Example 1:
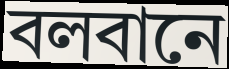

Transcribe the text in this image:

বলবানে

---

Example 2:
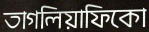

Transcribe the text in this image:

তাগলিয়াফিকো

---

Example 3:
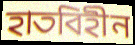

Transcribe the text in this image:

হাতবিহীন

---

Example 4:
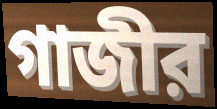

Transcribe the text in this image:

গাজীর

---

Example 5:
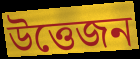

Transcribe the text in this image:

উত্তেজন